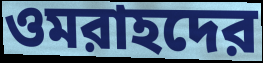
ওমরাহদের